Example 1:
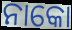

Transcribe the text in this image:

ନାକୋ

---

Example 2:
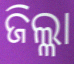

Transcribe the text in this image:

ଜିଲ୍ଳା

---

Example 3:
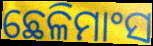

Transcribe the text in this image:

ଛେଳିମାଂସ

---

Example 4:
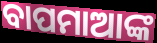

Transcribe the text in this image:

ବାପମାଆଙ୍କ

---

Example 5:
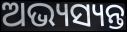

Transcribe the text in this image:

ଅଭ୍ୟସ୍ୟନ୍ତ